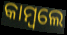
କାମ୍ବଲେ